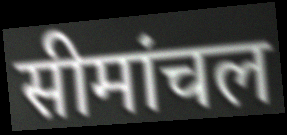
सीमांचल